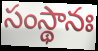
సంస్థానః